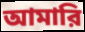
আমারি